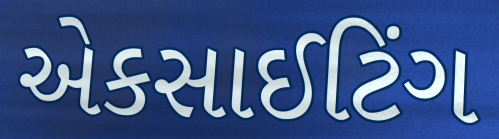
એકસાઈટિંગ